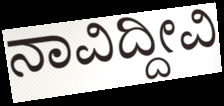
ನಾವಿದ್ದೀವಿ